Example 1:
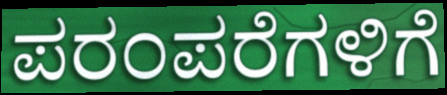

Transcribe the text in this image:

ಪರಂಪರೆಗಳಿಗೆ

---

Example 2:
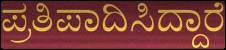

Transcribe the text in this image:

ಪ್ರತಿಪಾದಿಸಿದ್ದಾರೆ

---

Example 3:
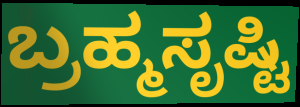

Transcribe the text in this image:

ಬ್ರಹ್ಮಸೃಷ್ಟಿ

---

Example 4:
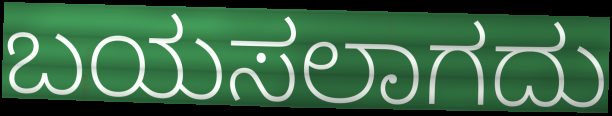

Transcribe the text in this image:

ಬಯಸಲಾಗದು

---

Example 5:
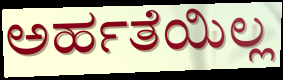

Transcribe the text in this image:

ಅರ್ಹತೆಯಿಲ್ಲ